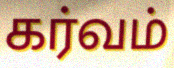
கர்வம்